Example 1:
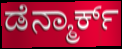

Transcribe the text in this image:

ಡೆನ್ಮಾರ್ಕ್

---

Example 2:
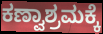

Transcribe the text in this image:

ಕಣ್ವಾಶ್ರಮಕ್ಕೆ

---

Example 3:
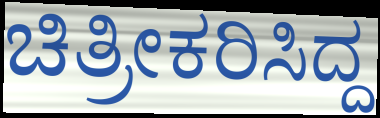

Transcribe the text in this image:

ಚಿತ್ರೀಕರಿಸಿದ್ದ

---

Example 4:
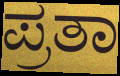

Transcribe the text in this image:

ಪ್ರತಾ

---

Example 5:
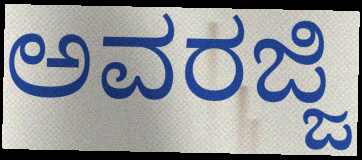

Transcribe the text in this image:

ಅವರಜ್ಜಿ